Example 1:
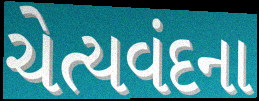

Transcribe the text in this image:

ચેત્યવંદના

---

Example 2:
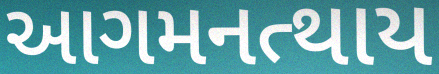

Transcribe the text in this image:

આગમનત્થાય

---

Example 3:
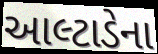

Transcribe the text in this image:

આલ્ટાડેના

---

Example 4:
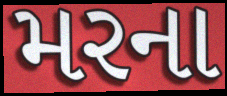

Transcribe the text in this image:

મરના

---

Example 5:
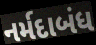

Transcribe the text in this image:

નર્મદાબંધ